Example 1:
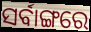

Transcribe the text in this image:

ସର୍ବାଙ୍ଗରେ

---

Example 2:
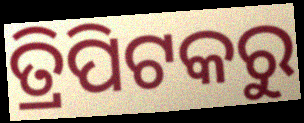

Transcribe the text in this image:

ତ୍ରିପିଟକରୁ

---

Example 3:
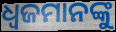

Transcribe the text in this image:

ଧ୍ୱଜମାନଙ୍କୁ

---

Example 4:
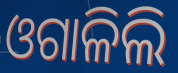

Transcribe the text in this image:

ଓଗାଳିଲି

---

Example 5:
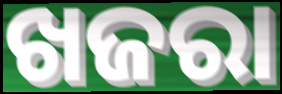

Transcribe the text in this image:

ଖଜରା